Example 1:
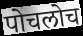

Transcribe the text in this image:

पोचलोच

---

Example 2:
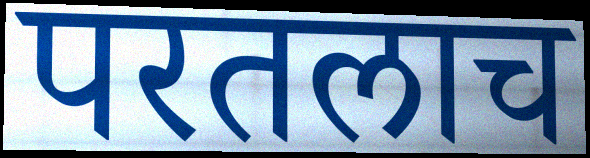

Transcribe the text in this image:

परतलाच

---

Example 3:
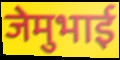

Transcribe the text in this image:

जेमुभाई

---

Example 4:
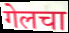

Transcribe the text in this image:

गेलचा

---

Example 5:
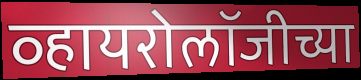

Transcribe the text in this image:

व्हायरोलॉजीच्या